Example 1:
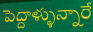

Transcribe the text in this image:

పెద్దాళ్ళున్నారే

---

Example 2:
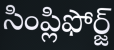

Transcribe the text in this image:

సింప్లిఫోర్జ్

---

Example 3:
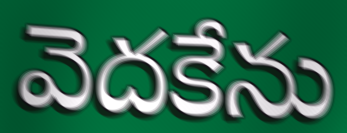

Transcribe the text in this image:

వెదకేను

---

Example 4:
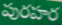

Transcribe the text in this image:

పురహర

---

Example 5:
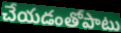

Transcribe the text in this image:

చేయడంతోపాటు